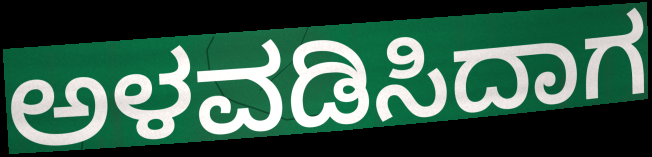
ಅಳವಡಿಸಿದಾಗ